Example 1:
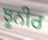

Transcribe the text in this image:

ਝੂਨੀਰ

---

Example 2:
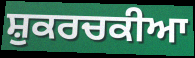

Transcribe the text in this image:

ਸ਼ੁਕਰਚਕੀਆ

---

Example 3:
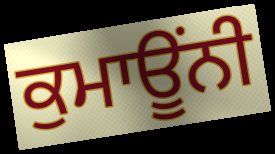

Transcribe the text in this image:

ਕੁਮਾਊਂਨੀ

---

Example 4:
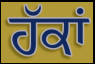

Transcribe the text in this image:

ਹੱਕਾਂ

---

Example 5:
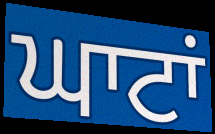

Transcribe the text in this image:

ਘਾਟਾਂ